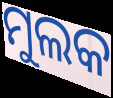
ମୁଲକ